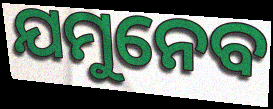
ଯମୁନେବ